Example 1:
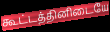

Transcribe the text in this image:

கூட்டத்தினிடையே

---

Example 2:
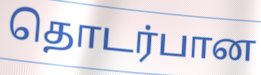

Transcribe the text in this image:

தொடர்பான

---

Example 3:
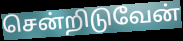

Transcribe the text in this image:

சென்றிடுவேன்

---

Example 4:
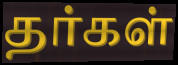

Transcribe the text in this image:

தர்கள்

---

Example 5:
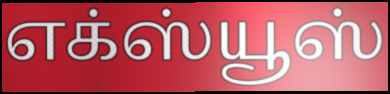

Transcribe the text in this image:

எக்ஸ்யூஸ்